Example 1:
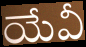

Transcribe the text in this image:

యేవీ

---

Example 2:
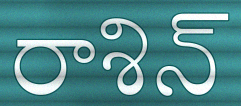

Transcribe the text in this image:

రాశిన్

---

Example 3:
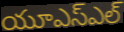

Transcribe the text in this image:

యూఎస్ఎల్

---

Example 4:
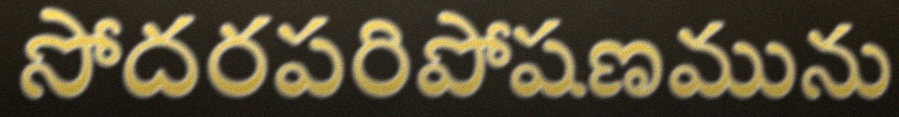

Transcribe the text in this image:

సోదరపరిపోషణమును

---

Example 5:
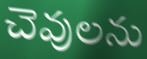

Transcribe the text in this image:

చెవులను